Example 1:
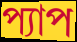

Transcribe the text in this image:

প্যাপ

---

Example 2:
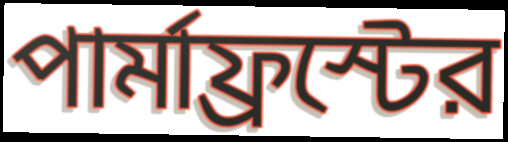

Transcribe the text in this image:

পার্মাফ্রস্টের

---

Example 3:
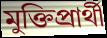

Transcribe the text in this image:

মুক্তিপ্রার্থী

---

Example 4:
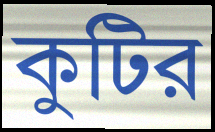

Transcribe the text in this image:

কুটির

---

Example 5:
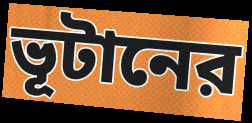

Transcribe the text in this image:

ভূটানের